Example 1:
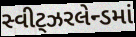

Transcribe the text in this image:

સ્વીટ્ઝરલેન્ડમાં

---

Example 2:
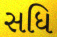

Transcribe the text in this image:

સધિ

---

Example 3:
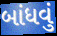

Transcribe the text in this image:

બાંધવું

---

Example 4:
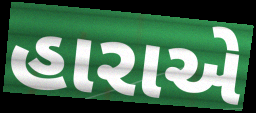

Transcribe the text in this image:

હારાએ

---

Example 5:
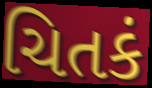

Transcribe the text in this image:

ચિતકં